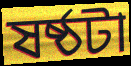
ষষ্ঠটা